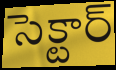
సెక్టార్